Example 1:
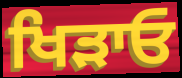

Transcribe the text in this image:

ਖਿੜਾਓ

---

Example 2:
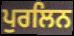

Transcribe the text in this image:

ਪੁਰਲਿਨ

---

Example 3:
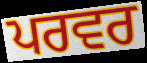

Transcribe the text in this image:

ਪਰਵਰ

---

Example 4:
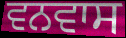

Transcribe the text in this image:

ਵਨਵਾਸ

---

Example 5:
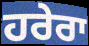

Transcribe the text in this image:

ਹਰੇਰਾ